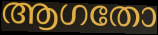
ആഗതോ